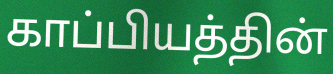
காப்பியத்தின்